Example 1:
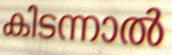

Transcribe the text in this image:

കിടന്നാൽ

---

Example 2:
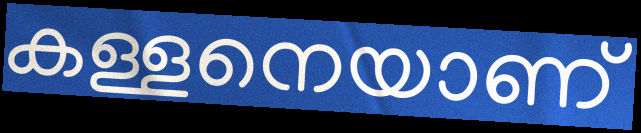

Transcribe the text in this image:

കള്ളനെയാണ്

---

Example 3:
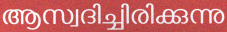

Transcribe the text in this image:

ആസ്വദിച്ചിരിക്കുന്നു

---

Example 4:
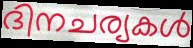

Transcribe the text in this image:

ദിനചര്യകൾ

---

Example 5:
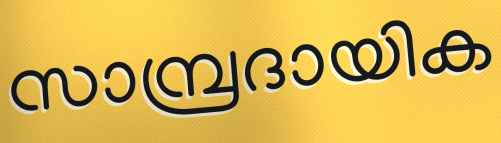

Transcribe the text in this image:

സാമ്പ്രദായിക